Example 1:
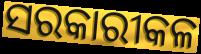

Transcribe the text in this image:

ସରକାରୀକଳ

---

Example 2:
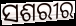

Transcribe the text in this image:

ସଶରୀର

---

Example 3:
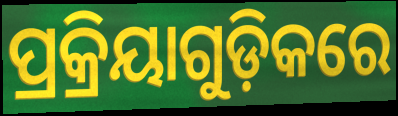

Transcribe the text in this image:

ପ୍ରକ୍ରିୟାଗୁଡ଼ିକରେ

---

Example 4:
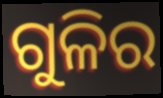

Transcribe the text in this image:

ଗୁଳିର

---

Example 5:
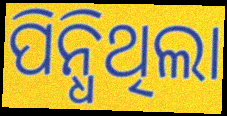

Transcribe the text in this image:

ପିନ୍ଧିଥିଲା